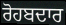
ਰੋਹਬਦਾਰ